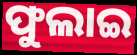
ଫୁଲାଇ